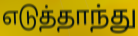
எடுத்தாந்து